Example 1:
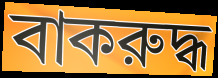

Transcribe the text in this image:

বাকরুদ্ধ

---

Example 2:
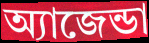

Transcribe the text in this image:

অ্যাজেন্ডা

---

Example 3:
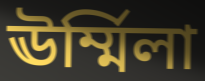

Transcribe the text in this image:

ঊর্ম্মিলা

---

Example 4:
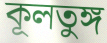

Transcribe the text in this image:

কূলতুঙ্গ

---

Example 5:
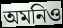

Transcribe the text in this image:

অমনিও